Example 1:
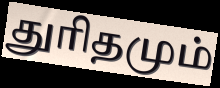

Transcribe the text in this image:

துரிதமும்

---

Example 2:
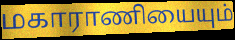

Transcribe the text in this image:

மகாராணியையும்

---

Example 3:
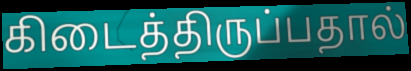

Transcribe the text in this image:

கிடைத்திருப்பதால்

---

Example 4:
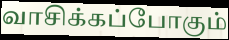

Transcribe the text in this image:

வாசிக்கப்போகும்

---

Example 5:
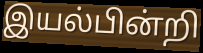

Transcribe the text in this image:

இயல்பின்றி